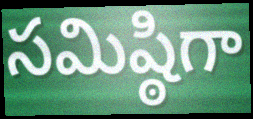
సమిష్ఠిగా